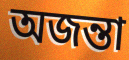
অজন্তা